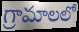
గ్రామాలలో